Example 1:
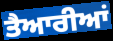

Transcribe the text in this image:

ਤੈਆਰੀਆਂ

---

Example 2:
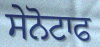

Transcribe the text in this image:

ਸੇਨੋਟਾਫ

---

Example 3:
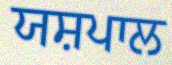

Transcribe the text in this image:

ਯਸ਼ਪਾਲ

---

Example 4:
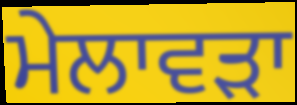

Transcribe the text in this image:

ਮੇਲਾਵੜਾ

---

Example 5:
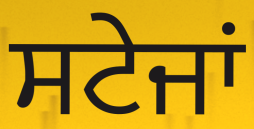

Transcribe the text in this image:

ਸਟੇਜਾਂ